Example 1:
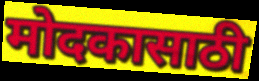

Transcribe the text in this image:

मोदकासाठी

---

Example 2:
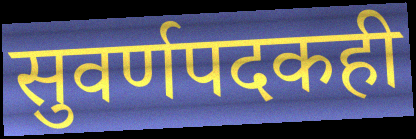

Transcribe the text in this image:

सुवर्णपदकही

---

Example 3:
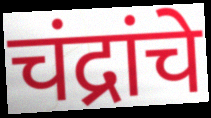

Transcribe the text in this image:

चंद्रांचे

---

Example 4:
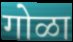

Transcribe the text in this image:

गोळा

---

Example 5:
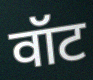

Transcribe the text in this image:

वॉट